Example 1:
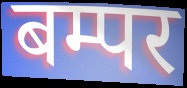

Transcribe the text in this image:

बम्पर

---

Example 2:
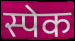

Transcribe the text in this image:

स्पेक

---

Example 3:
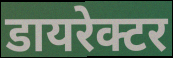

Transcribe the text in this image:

डायरेक्टर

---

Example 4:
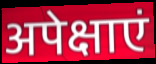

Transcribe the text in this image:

अपेक्षाएं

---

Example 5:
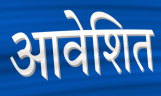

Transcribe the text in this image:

आवेशित